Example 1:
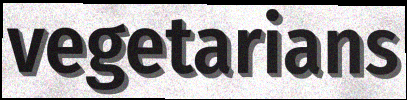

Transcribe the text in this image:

vegetarians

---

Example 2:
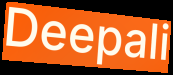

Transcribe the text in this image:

Deepali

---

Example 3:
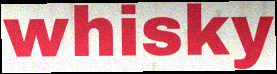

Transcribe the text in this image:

whisky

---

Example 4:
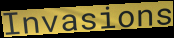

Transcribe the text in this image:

Invasions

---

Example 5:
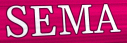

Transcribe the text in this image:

SEMA